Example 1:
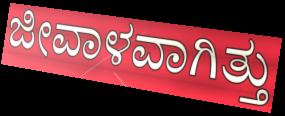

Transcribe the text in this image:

ಜೀವಾಳವಾಗಿತ್ತು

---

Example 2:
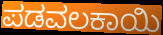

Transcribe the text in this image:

ಪಡವಲಕಾಯಿ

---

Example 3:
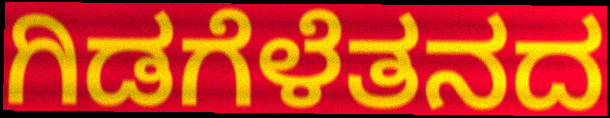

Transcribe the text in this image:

ಗಿಡಗೆಳೆತನದ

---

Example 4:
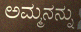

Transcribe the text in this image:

ಅಮ್ಮನನ್ನು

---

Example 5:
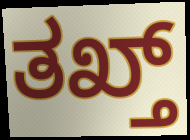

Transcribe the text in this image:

ತಖ್ತ್